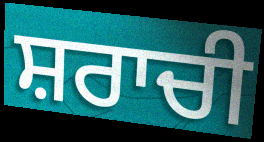
ਸ਼ਰਾਚੀ